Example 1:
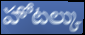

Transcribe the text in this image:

హోటల్కు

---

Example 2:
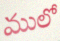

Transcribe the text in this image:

ములో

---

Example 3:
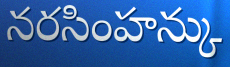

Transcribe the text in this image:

నరసింహన్కు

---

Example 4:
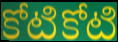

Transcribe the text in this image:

కోటికోటి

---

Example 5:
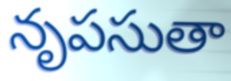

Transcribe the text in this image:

నృపసుతా